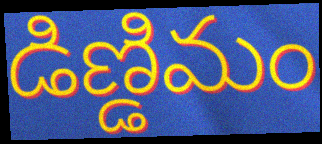
డిణ్డిమం